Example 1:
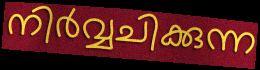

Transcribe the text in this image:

നിർവ്വചിക്കുന്ന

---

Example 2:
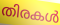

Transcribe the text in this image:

തിരകൾ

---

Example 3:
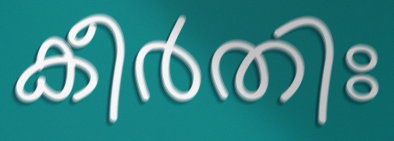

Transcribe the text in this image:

കീർതിഃ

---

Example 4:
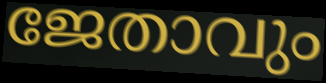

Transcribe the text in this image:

ജേതാവും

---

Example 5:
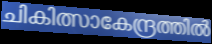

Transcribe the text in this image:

ചികിത്സാകേന്ദ്രത്തിൽ